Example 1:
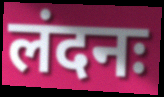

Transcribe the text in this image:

लंदनः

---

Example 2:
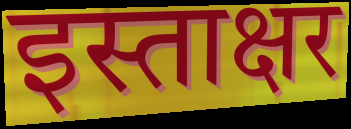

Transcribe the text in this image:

इस्ताक्षर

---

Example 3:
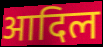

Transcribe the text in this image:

आदिल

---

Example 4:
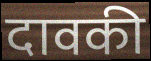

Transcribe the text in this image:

दावकी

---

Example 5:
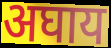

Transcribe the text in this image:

अघाय